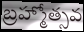
బ్రహ్మోత్సవ